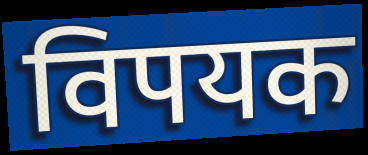
विपयक